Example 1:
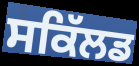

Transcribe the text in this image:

ਸਕਿੱਲਡ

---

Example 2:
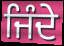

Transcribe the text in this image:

ਜਿੰਦੇ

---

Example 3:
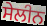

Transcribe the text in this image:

ਸੇਲੀਨ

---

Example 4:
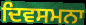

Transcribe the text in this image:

ਦਿਵਸਮਨਾ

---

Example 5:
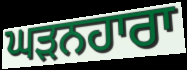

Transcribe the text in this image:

ਘੜਨਹਾਰਾ